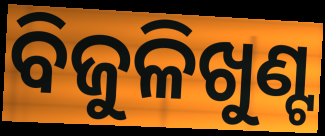
ବିଜୁଳିଖୁଣ୍ଟ